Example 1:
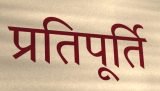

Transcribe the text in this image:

प्रतिपूर्ति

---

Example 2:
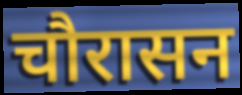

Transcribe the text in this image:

चौरासन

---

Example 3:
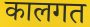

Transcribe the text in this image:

कालगत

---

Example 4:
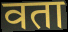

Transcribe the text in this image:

वता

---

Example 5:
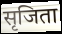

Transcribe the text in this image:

सृजिता